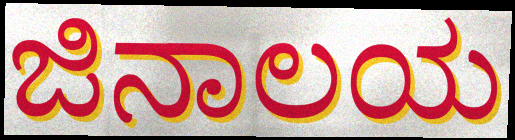
ಜಿನಾಲಯ